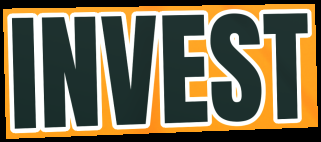
INVEST